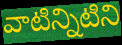
వాటిన్నిటిని